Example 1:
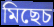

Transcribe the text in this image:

মিছেচ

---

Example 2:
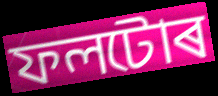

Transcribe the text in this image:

ফলটোৰ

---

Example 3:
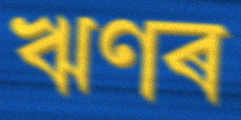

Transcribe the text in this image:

ঋণৰ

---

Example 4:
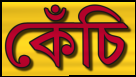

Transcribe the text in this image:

কেঁচি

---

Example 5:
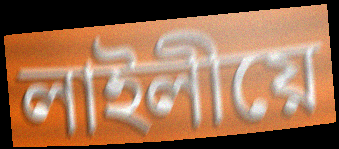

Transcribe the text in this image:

লাইলীয়ে